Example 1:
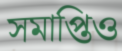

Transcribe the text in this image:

সমাপ্তিও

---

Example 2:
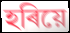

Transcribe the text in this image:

হৰিয়ে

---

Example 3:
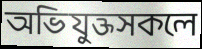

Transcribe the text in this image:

অভিযুক্তসকলে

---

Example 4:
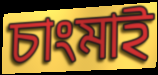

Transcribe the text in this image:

চাংমাই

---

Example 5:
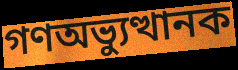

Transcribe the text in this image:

গণঅভ্যুত্থানক